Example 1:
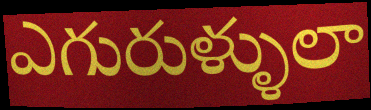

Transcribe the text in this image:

ఎగురుళ్ళులా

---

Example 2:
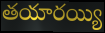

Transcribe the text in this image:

తయారయ్యి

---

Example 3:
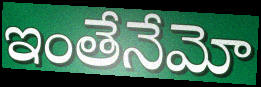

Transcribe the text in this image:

ఇంతేనేమో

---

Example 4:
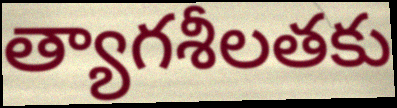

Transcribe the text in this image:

త్యాగశీలతకు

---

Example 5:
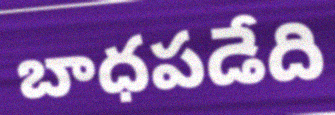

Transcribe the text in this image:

బాధపడేది